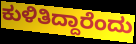
ಕುಳಿತಿದ್ದಾರೆಂದು